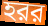
হরর